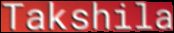
Takshila